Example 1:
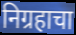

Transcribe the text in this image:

निग्रहाचा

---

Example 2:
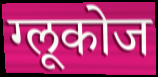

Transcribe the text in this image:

ग्लूकोज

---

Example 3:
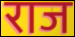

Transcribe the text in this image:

राज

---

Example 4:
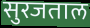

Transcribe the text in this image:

सुरजताल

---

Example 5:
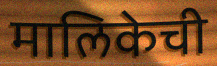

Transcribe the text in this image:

मालिकेची